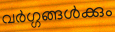
വർഗ്ഗങ്ങൾക്കും